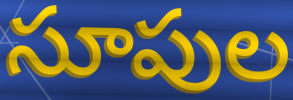
సూపుల